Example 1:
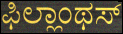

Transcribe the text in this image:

ಫಿಲ್ಲಾಂಥಸ್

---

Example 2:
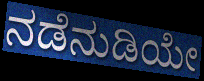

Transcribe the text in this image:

ನಡೆನುಡಿಯೇ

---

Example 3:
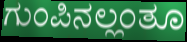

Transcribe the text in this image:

ಗುಂಪಿನಲ್ಲಂತೂ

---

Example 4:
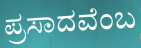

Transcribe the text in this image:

ಪ್ರಸಾದವೆಂಬ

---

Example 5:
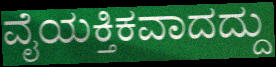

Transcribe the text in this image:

ವೈಯಕ್ತಿಕವಾದದ್ದು